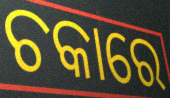
ଚକାରେ